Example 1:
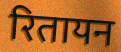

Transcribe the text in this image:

रितायन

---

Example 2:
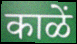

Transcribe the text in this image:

काळें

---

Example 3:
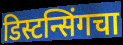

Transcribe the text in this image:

डिस्टन्सिंगचा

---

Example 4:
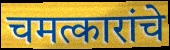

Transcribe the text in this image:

चमत्कारांचे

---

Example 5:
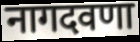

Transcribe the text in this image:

नागदवणा